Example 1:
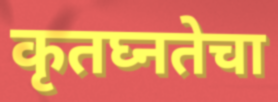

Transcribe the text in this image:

कृतघ्नतेचा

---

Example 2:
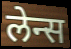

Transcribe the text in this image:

लेन्स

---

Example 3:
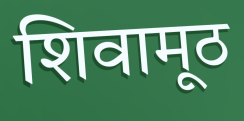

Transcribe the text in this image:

शिवामूठ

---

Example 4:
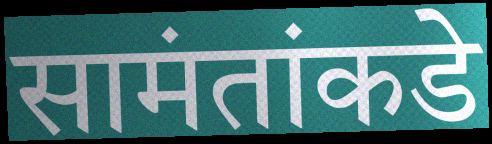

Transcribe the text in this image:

सामंतांकडे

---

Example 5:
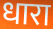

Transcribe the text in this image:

धारा